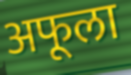
अफूला